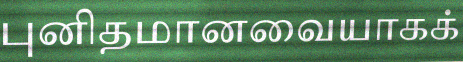
புனிதமானவையாகக்